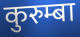
कुरुम्बा